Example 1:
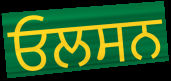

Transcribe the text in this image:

ਓਲਸਨ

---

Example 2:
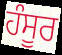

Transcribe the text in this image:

ਹੰਸੂਰ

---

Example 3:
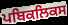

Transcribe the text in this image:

ਪਬਿਕਲਿਕਸ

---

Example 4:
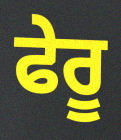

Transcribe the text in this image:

ਫੇਰੂ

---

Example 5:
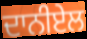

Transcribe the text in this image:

ਦਾਨੀਏਲ